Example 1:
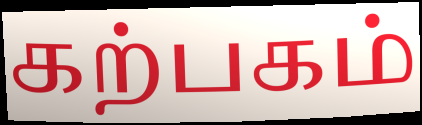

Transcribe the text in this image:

கற்பகம்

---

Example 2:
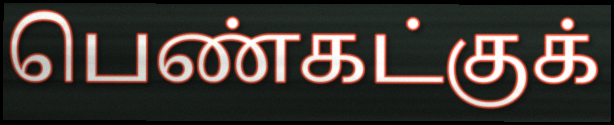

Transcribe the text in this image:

பெண்கட்குக்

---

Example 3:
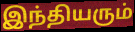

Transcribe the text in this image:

இந்தியரும்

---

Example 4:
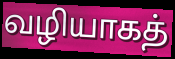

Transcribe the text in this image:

வழியாகத்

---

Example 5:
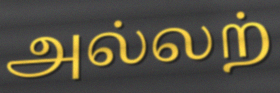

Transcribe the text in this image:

அல்லற்